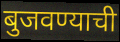
बुजवण्याची